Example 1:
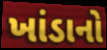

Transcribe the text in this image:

ખાંડાનો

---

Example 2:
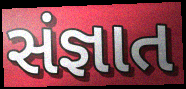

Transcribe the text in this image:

સંજ્ઞાત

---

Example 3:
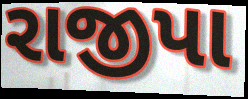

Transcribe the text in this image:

રાજીપા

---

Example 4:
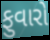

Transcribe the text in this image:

ફુવારો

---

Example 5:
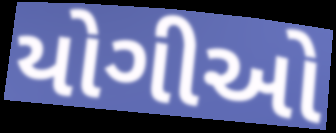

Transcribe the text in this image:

યોગીઓ